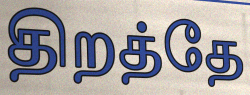
திறத்தே